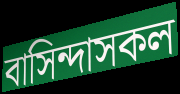
বাসিন্দাসকল